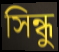
সিন্ধু